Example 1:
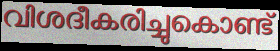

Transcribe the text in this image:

വിശദീകരിച്ചുകൊണ്ട്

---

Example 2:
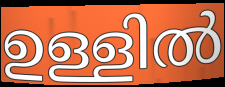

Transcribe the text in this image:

ഉള്ളിൽ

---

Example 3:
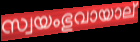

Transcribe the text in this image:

സ്വയംഭുവായാല്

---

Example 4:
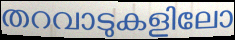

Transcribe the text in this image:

തറവാടുകളിലോ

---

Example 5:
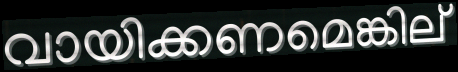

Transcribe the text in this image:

വായിക്കണമെങ്കില്